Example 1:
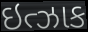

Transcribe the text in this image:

ઇત્ઝાક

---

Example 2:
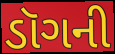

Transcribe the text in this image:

ડૉગની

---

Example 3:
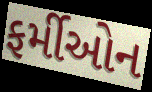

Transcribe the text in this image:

ફર્મીઓન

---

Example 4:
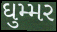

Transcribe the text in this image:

ઘુમ્મર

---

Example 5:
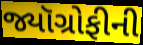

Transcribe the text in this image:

જ્યૉગ્રોફીની